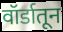
वॉर्डातून